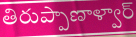
తిరుప్పాణాళ్వార్